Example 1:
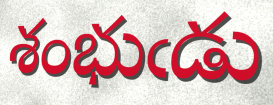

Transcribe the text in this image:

శంభుఁడు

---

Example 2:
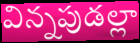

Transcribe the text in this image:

విన్నపుడల్లా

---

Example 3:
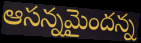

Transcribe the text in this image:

ఆసన్నమైందన్న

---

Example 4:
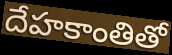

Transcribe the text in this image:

దేహకాంతితో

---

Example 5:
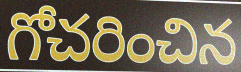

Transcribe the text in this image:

గోచరించిన